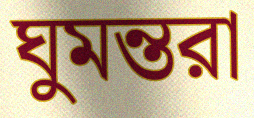
ঘুমন্তরা